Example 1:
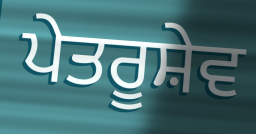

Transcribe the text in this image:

ਪੇਤਰੂਸ਼ੇਵ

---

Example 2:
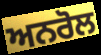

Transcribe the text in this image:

ਅਨਰੋਲ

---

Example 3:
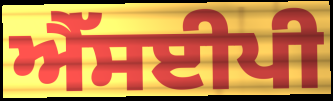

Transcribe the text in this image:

ਐੱਸਈਪੀ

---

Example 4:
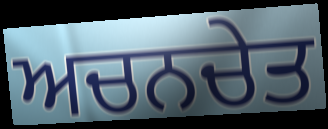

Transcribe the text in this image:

ਅਚਨਚੇਤ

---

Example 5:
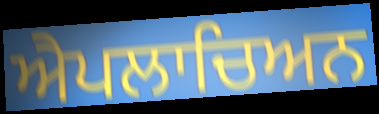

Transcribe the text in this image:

ਐਪਲਾਚਿਅਨ